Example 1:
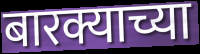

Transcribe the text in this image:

बारक्याच्या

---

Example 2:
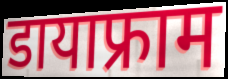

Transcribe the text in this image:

डायाफ्राम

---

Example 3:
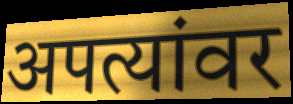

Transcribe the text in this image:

अपत्यांवर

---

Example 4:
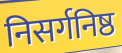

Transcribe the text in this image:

निसर्गनिष्ठ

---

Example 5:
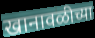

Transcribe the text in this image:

खानावळीच्या